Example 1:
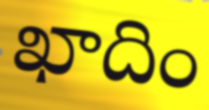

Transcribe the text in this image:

ఖాదిం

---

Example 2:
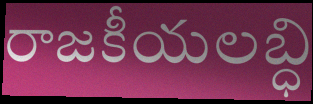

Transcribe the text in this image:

రాజకీయలబ్ధి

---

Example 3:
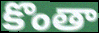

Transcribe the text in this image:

కొంతా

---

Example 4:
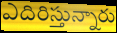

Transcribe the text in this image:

ఎదిరిస్తున్నారు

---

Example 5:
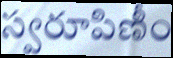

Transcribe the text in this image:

స్వరూపిణీం